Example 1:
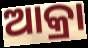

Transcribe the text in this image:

ଆକ୍ରା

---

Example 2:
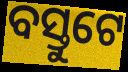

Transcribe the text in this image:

ବସ୍ତୁଟେ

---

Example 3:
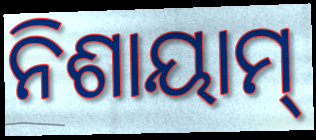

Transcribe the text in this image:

ନିଶାୟାମ୍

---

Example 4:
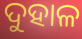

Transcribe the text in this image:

ଦୁହାଳ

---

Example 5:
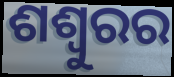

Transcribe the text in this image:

ଶଶ୍ୱୁରର